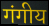
गंगीय